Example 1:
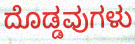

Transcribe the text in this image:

ದೊಡ್ಡವುಗಳು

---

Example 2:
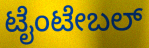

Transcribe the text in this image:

ಟೈಂಟೇಬಲ್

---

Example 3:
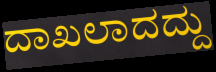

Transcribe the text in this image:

ದಾಖಲಾದದ್ದು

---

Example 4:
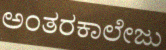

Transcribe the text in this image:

ಅಂತರಕಾಲೇಜು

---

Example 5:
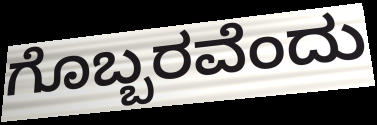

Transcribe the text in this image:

ಗೊಬ್ಬರವೆಂದು